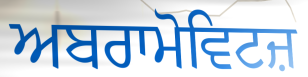
ਅਬਰਾਮੋਵਿਟਜ਼